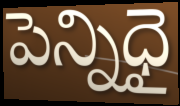
పెన్నిధై